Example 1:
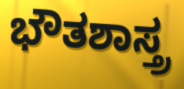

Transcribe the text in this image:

ಭೌತಶಾಸ್ತ್ರ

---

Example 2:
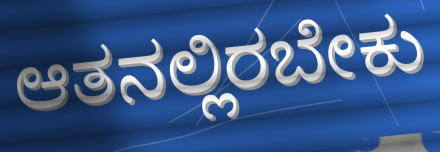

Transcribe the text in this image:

ಆತನಲ್ಲಿರಬೇಕು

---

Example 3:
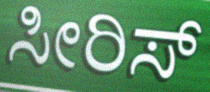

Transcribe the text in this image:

ಸೀರಿಸ್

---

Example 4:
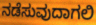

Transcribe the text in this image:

ನಡೆಸುವುದಾಗಲಿ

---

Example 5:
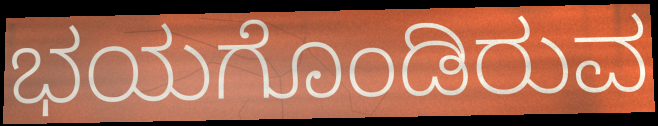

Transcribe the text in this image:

ಭಯಗೊಂಡಿರುವ